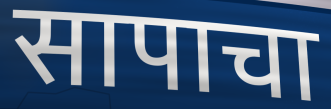
सापाचा